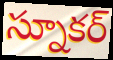
స్నూకర్